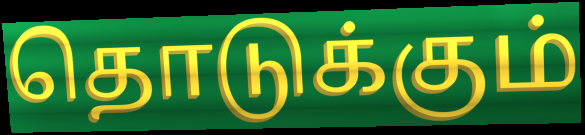
தொடுக்கும்